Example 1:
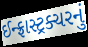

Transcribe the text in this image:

ઈન્ફ્રાસ્ટ્રક્ચરનું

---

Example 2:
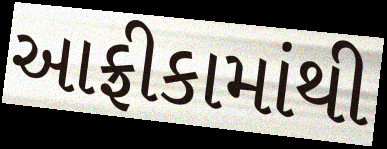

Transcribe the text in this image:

આફ્રીકામાંથી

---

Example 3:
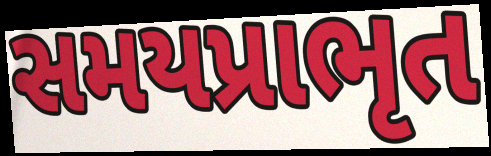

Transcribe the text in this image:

સમયપ્રાભૃત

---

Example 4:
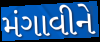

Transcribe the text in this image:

મંગાવીને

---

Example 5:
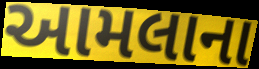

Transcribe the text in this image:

આમલાના